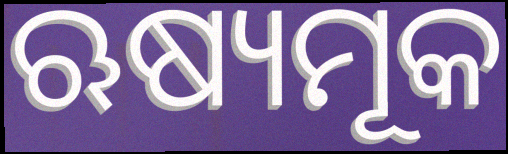
ଋଷ୍ୟମୂକ